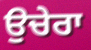
ਉਚੇਰਾ